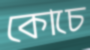
কোচে